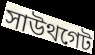
সাউথগেট